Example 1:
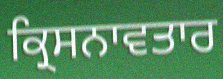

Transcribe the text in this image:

ਕ੍ਰਿਸਨਾਵਤਾਰ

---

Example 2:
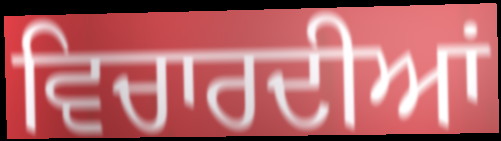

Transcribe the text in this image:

ਵਿਚਾਰਦੀਆਂ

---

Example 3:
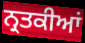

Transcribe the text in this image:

ਨ੍ਰਤਕੀਆਂ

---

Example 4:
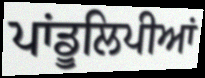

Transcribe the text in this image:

ਪਾਂਡੂਲਿਪੀਆਂ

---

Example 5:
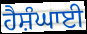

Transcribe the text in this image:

ਹੈਸ਼ੰਘਾਈ